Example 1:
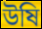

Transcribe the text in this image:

উষি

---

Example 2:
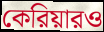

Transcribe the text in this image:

কেরিয়ারও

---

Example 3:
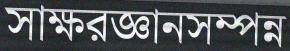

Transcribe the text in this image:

সাক্ষরজ্ঞানসম্পন্ন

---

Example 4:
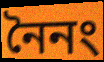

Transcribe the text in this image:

নৈনং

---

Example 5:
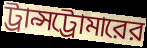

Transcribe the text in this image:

ট্রান্সট্রোমারের